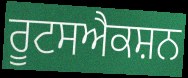
ਰੂਟਸਐਕਸ਼ਨ